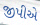
જીપીએ